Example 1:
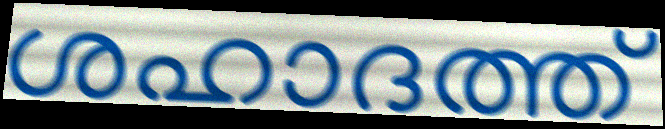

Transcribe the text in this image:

ശഹാദത്ത്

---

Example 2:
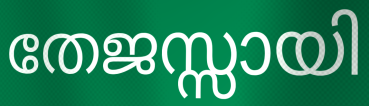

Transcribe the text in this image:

തേജസ്സായി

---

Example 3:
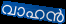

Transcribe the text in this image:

വാഹൻ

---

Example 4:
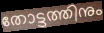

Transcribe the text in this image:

തോട്ടത്തിനും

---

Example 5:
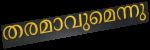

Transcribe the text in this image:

തരമാവുമെന്നു